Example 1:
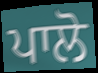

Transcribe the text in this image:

ਪਾਲੋ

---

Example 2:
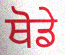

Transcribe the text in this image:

ਥੋਡੇ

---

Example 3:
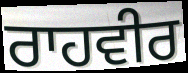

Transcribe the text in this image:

ਰਾਹਵੀਰ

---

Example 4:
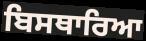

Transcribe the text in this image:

ਬਿਸਥਾਰਿਆ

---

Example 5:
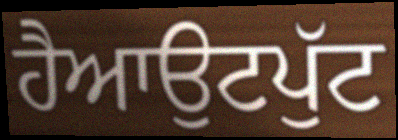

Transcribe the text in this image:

ਹੈਆਉਟਪੁੱਟ